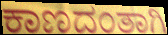
ಕಾಣದಂತಾಗಿ